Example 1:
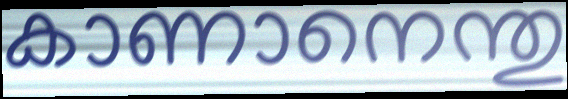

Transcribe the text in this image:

കാണാനെന്തു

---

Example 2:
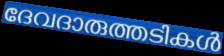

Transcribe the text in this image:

ദേവദാരുത്തടികൾ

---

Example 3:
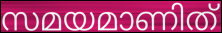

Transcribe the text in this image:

സമയമാണിത്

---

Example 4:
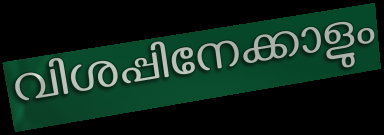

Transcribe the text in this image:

വിശപ്പിനേക്കാളും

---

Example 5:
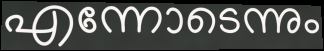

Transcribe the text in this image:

എന്നോടെന്നും